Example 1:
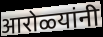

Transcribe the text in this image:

आरोळ्यांनी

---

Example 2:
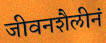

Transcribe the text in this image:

जीवनशैलीनं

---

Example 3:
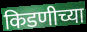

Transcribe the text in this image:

किडणीच्या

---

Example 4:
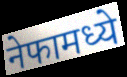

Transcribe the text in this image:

नेफामध्ये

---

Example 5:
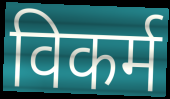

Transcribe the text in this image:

विकर्म